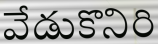
వేడుకొనిరి